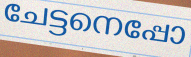
ചേട്ടനെപ്പോ